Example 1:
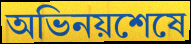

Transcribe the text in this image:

অভিনয়শেষে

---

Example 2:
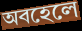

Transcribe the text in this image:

অবহেলে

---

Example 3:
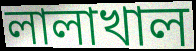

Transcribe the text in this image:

লালাখাল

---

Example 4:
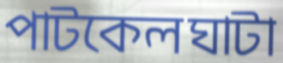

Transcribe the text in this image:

পাটকেলঘাটা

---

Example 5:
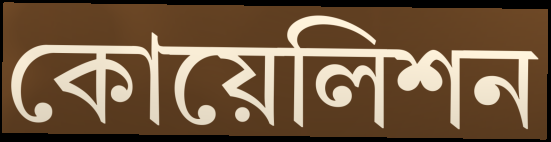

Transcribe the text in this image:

কোয়েলিশন